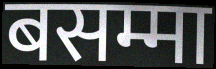
बसम्मा